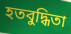
হতবুদ্ধিতা